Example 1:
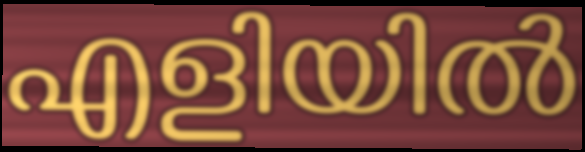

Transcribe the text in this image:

എളിയിൽ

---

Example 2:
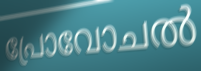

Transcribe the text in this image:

പ്രോവോചൽ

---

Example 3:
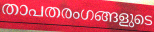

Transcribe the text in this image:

താപതരംഗങ്ങളുടെ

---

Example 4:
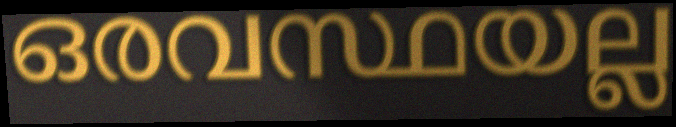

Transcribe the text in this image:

ഒരവസ്ഥയല്ല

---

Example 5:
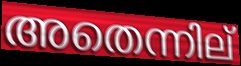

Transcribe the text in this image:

അതെന്നില്